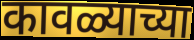
कावळ्याच्या